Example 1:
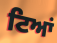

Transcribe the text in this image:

ਟਿਆਂ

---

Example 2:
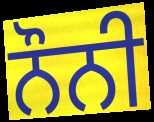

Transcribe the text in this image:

ਨੌਨੀ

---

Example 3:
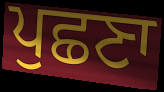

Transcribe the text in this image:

ਪੁਛਣਾ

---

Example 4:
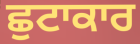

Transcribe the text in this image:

ਛੁਟਾਕਾਰ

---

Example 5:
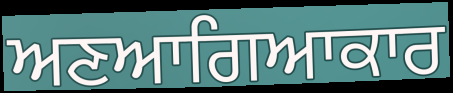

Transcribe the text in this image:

ਅਣਆਗਿਆਕਾਰ